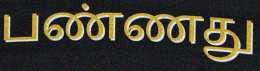
பண்ணது